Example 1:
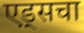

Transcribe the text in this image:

एड्सचा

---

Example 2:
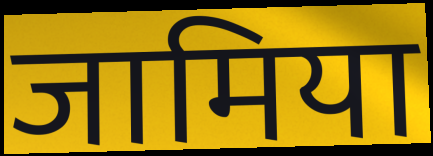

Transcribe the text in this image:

जामिया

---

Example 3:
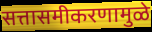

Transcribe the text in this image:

सत्तासमीकरणामुळे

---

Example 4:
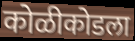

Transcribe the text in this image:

कोळीकोडला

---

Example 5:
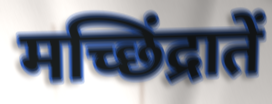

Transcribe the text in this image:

मच्छिंद्रातें